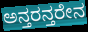
ಅನ್ತರನ್ತರೇನ